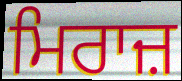
ਮਿਰਾਜ਼